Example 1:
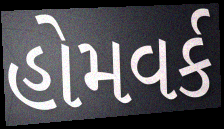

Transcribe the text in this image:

હોમવર્ક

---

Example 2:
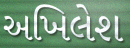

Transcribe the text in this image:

અખિલેશ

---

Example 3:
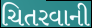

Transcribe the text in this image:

ચિતરવાની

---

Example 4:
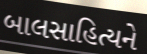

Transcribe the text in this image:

બાલસાહિત્યને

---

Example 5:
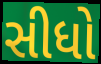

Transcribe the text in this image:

સીધો